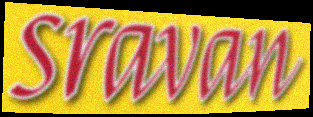
sravan